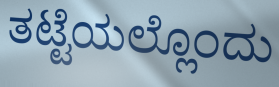
ತಟ್ಟೆಯಲ್ಲೊಂದು